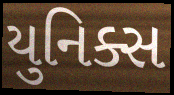
યુનિક્સ